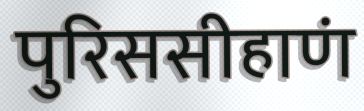
पुरिससीहाणं